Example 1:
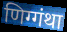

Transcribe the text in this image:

णिग्गंथा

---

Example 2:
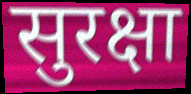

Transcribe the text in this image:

सुरक्षा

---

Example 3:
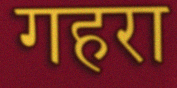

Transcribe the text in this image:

गहरा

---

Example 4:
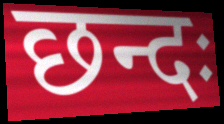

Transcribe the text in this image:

छन्दः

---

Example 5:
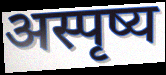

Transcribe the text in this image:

अस्पृष्य